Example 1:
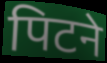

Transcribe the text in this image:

पिटने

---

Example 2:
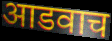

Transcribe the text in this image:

आडवाच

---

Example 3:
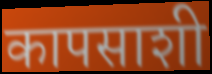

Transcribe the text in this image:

कापसाशी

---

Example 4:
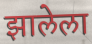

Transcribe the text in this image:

झालेला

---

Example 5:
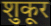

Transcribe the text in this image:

शुकूर